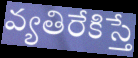
వ్యతిరేకిస్తే